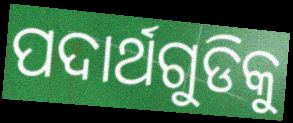
ପଦାର୍ଥଗୁଡିକୁ